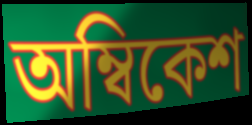
অম্বিকেশ